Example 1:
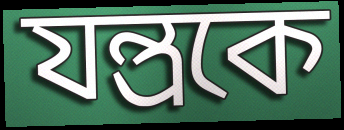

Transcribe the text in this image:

যন্ত্রকে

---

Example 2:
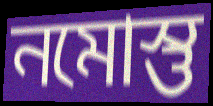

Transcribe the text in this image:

নমোস্তু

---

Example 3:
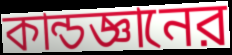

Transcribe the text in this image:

কান্ডজ্ঞানের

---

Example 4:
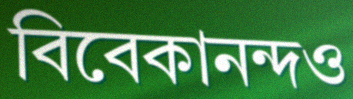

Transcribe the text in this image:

বিবেকানন্দও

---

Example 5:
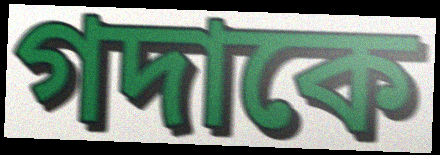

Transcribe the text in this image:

গদাকে